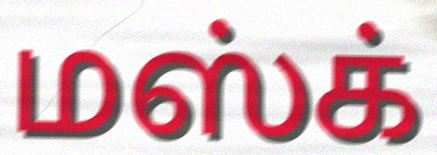
மஸ்க்